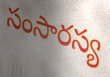
సంసారస్య